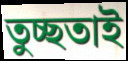
তুচ্ছতাই